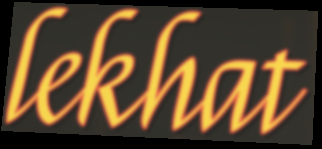
lekhat